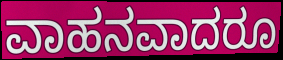
ವಾಹನವಾದರೂ